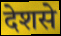
देशसे